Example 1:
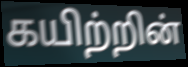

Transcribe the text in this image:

கயிற்றின்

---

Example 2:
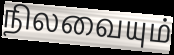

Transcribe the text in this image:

நிலவையும்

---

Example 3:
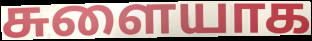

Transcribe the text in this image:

சுளையாக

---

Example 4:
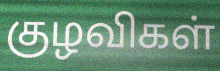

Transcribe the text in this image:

குழவிகள்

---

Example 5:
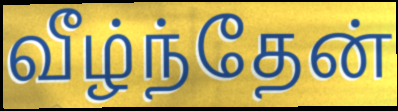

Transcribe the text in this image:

வீழ்ந்தேன்